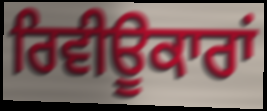
ਰਿਵੀਊਕਾਰਾਂ